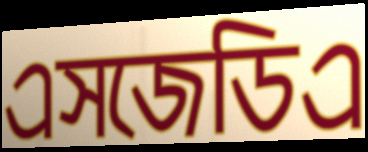
এসজেডিএ